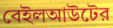
বেইলআউটের